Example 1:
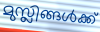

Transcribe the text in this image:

മുസ്ലിങ്ങൾക്ക്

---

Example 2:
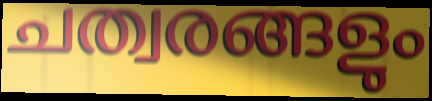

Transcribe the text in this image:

ചത്വരങ്ങളും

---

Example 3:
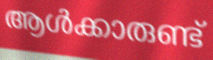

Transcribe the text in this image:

ആൾക്കാരുണ്ട്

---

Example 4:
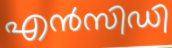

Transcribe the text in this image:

എൻസിഡി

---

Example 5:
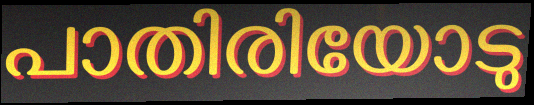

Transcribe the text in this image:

പാതിരിയോടു